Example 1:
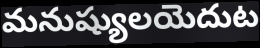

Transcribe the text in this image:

మనుష్యులయెదుట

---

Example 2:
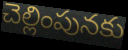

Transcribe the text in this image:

చెల్లింపునకు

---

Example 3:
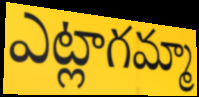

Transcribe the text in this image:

ఎట్లాగమ్మా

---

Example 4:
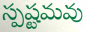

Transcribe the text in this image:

స్పష్టమవు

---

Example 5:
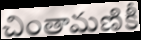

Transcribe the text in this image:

చింతామణికీ